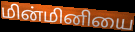
மின்மினியை